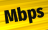
Mbps